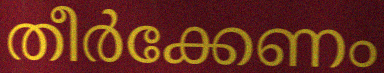
തീർക്കേണം